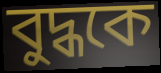
বুদ্ধকে